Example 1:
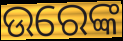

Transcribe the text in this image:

ଉରେଙ୍କ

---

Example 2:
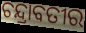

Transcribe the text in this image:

ଚନ୍ଦ୍ରାବତୀର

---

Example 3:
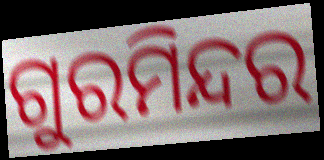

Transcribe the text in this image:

ଗୁରମିନ୍ଦର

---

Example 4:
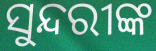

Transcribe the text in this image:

ସୁନ୍ଦରୀଙ୍କ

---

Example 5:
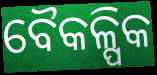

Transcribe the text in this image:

ବୈକଳ୍ପିକ